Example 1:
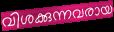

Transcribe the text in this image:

വിശക്കുന്നവരായ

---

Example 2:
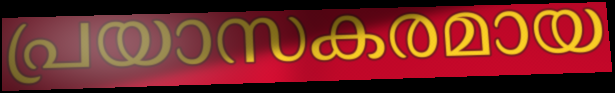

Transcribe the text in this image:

പ്രയാസകരമായ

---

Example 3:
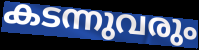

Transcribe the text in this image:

കടന്നുവരും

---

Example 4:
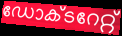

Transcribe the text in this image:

ഡോക്ടറേറ്റ്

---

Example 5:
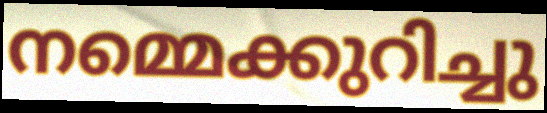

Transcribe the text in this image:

നമ്മെക്കുറിച്ചു